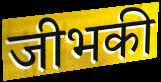
जीभकी